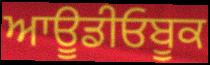
ਆਊਡੀਓਬੂਕ